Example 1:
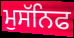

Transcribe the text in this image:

ਮੁਸੱਨਿਫ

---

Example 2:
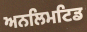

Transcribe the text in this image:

ਅਨਲਿਮਟਿਡ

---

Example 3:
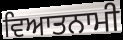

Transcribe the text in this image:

ਵਿਆਤਨਾਮੀ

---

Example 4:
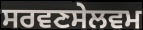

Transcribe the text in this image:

ਸਰਵਣਸੇਲਵਮ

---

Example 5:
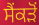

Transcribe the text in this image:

ਸੈਂਕੜੋਂ